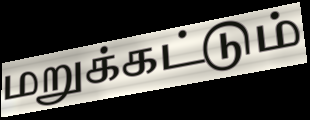
மறுக்கட்டும்